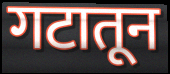
गटातून